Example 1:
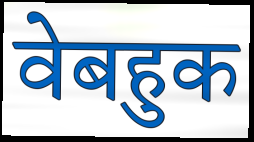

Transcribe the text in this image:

वेबहुक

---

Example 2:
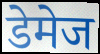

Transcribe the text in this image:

डेमेज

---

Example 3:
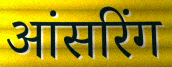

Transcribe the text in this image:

आंसरिंग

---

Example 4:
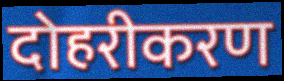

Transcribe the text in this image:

दोहरीकरण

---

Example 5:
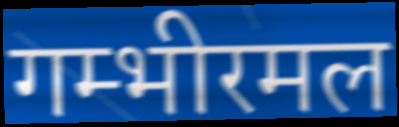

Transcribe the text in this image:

गम्भीरमल